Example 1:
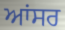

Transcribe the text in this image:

ਆਂਸਰ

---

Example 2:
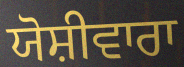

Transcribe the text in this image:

ਯੋਸ਼ੀਵਾਰਾ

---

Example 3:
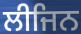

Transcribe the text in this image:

ਲੀਜਿਨ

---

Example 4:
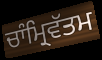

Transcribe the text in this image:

ਚਾੰਮ੍ਰਿਵੱਤਮ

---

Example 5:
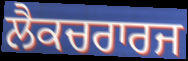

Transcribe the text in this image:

ਲੈਕਚਰਾਰਜ